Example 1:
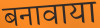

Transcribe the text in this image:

बनावाया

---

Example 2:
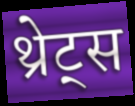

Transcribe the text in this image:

थ्रेट्स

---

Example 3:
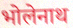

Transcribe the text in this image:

भोलेनाथ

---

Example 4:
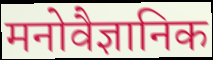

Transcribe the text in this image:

मनोवैज्ञानिक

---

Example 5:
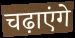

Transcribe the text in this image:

चढ़ाएंगे